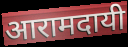
आरामदायी